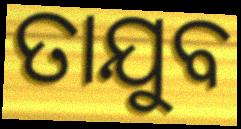
ତାଯୁବ